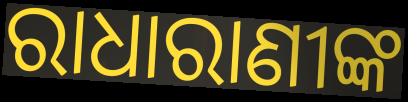
ରାଧାରାଣୀଙ୍କ